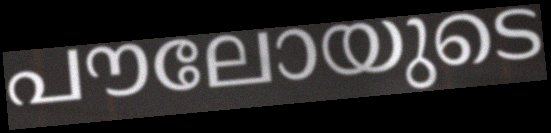
പൗലോയുടെ